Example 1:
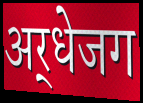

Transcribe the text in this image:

अर्धेजग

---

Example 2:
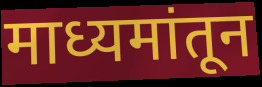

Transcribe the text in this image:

माध्यमांतून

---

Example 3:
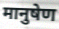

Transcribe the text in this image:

मानुषेण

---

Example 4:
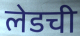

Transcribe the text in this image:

लेडची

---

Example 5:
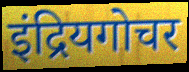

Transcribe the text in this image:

इंद्रियगोचर